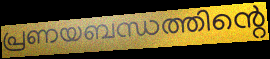
പ്രണയബന്ധത്തിന്റെ